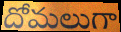
దోమలుగా